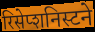
रिसेप्शनिस्टने